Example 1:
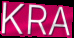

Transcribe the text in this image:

KRA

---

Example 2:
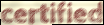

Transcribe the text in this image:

certified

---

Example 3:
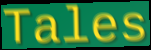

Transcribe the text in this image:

Tales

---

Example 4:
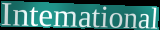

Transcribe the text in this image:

Intemational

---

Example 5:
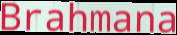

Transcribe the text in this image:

Brahmana